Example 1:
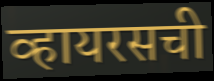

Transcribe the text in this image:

व्हायरसची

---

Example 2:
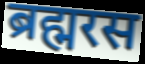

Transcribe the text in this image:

ब्रह्मरस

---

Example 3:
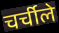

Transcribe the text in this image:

चर्चीले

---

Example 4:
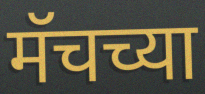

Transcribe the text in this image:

मॅचच्या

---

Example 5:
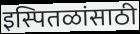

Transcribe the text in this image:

इस्पितळांसाठी